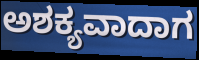
ಅಶಕ್ಯವಾದಾಗ